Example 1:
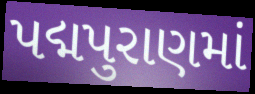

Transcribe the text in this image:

પદ્મપુરાણમાં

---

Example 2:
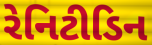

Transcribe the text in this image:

રેનિટીડિન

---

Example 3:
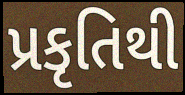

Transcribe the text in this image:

પ્રકૃતિથી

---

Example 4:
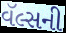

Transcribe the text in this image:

વૅલ્સની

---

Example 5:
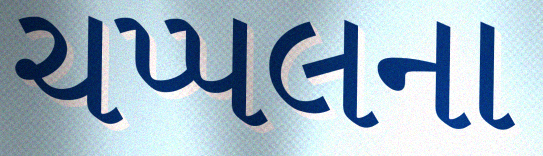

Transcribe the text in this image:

ચપ્પલના